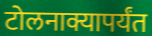
टोलनाक्यापर्यंत